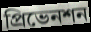
প্রিভেনশন